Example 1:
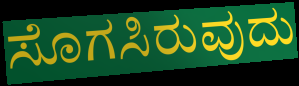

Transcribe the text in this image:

ಸೊಗಸಿರುವುದು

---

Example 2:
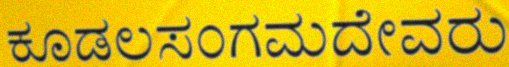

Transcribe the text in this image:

ಕೂಡಲಸಂಗಮದೇವರು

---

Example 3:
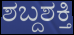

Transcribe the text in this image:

ಶಬ್ದಶಕ್ತಿ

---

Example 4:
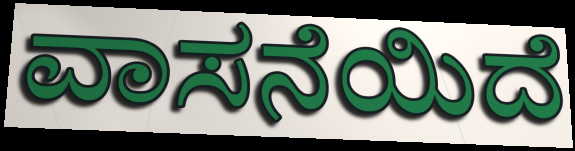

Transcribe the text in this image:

ವಾಸನೆಯಿದೆ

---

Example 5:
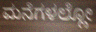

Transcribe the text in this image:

ಮನೆಗಳಲ್ಲೋ